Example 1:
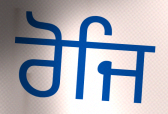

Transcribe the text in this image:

ਰੋਜਿ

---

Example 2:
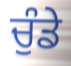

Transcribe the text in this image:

ਚੁੰਡੇ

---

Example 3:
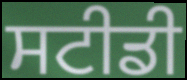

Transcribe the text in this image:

ਸਟੀਡੀ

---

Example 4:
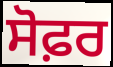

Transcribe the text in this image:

ਸੋਫ਼ਰ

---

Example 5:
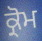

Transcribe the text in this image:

ਕ੍ਰੋਮ